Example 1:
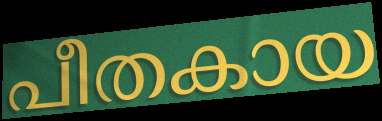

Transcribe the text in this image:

പീതകായ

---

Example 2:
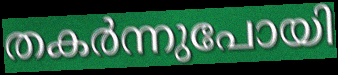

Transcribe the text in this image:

തകർന്നുപോയി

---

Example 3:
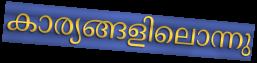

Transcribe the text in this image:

കാര്യങ്ങളിലൊന്നു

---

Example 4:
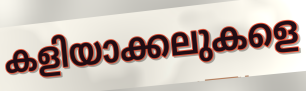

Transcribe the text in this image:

കളിയാക്കലുകളെ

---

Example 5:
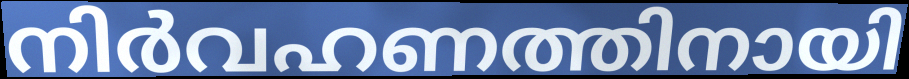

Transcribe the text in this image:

നിർവഹണത്തിനായി